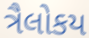
ત્રૈલોકય